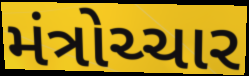
મંત્રોચ્ચાર